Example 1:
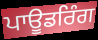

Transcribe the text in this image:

ਪਾਊਡਰਿੰਗ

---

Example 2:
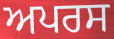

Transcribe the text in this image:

ਅਪਰਸ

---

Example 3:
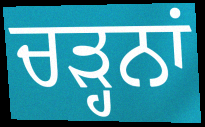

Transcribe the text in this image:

ਚੜ੍ਹਨਾਂ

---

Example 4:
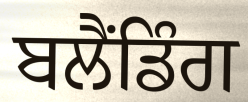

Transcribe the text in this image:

ਬਲੈਂਡਿੰਗ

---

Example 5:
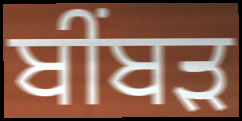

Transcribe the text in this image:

ਬੀਂਬੜ